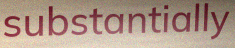
substantially